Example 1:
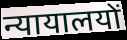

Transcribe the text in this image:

न्यायालयों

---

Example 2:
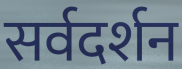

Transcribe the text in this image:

सर्वदर्शन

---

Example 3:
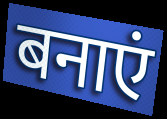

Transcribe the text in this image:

बनाएं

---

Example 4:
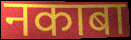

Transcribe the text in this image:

नकाबा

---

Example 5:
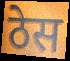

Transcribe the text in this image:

ठेस